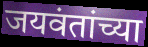
जयवंतांच्या